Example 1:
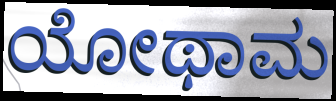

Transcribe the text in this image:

ಯೋಥಾಮ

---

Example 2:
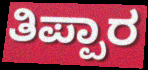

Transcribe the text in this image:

ತಿಪ್ಪಾರ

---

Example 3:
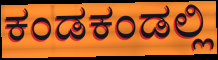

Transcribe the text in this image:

ಕಂಡಕಂಡಲ್ಲಿ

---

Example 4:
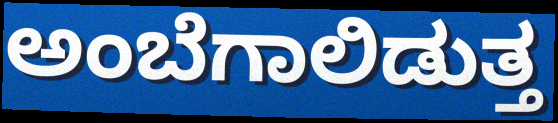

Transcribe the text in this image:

ಅಂಬೆಗಾಲಿಡುತ್ತ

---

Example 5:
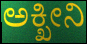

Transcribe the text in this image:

ಅಕ್ಖೀನಿ